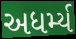
અધર્મ્ય